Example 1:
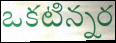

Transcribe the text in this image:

ఒకటిన్నర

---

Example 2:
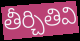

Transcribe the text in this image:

తీర్చితివి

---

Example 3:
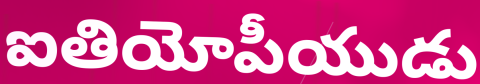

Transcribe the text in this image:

ఐతియోపీయుడు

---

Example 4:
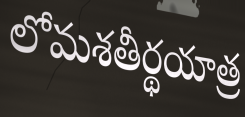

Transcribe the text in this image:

లోమశతీర్థయాత్ర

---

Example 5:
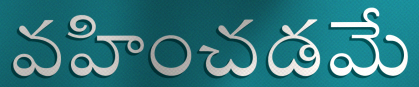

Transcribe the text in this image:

వహించడమే